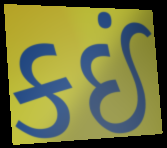
કઈં